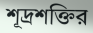
শূদ্রশক্তির